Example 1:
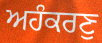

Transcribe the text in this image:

ਅਹੰਕਰਣੁ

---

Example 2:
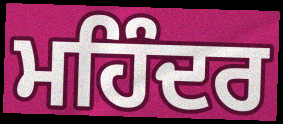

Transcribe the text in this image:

ਮਹਿੰਦਰ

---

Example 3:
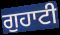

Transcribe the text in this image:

ਗੁਹਾਟੀ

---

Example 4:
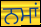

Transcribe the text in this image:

ਨਮਾਂ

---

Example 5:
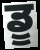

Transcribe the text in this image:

ਡੂ